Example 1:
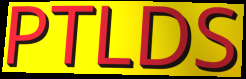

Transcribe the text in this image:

PTLDS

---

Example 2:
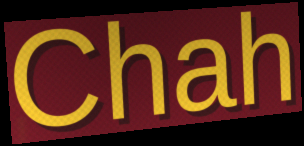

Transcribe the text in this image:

Chah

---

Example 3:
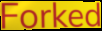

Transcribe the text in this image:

Forked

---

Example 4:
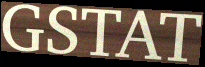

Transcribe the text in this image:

GSTAT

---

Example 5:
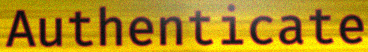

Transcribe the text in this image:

Authenticate